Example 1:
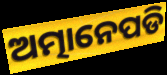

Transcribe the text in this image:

ଅତ୍ମାନେପଡି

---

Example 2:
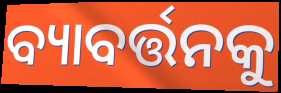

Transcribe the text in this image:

ବ୍ୟାବର୍ତ୍ତନକୁ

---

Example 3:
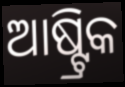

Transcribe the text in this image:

ଆଷ୍ଟ୍ରିକ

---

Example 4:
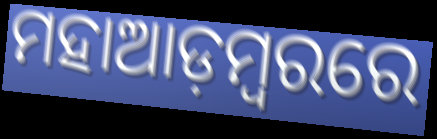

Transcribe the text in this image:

ମହାଆଡ଼ମ୍ୱରରେ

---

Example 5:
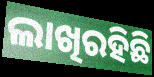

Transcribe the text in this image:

ଲାଖିରହିଛି